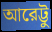
আরেট্টু